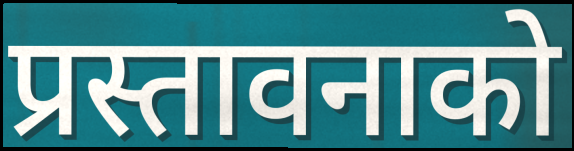
प्रस्तावनाको